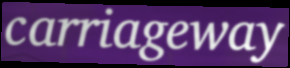
carriageway